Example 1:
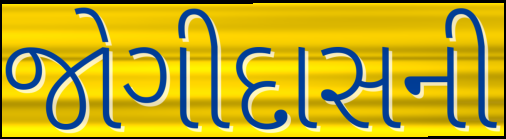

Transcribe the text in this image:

જોગીદાસની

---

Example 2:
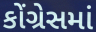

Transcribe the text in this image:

કોંગ્રેસમાં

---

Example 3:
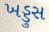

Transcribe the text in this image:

ખડ્ડુસ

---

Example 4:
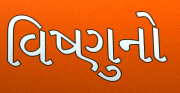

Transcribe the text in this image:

વિષ્ણુનો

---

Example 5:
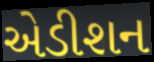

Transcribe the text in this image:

એડીશન